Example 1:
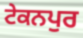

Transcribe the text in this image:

ਟੇਕਨਪੁਰ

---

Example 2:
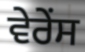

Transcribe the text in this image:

ਵੇਰੇਂਸ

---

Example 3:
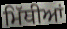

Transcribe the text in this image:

ਮਿੱਥੀਆਂ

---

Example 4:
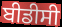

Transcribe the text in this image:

ਬੀਡੀਸੀ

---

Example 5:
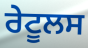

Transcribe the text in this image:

ਰੇਟੂਲਸ